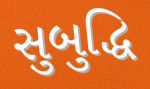
સુબુદ્ધિ